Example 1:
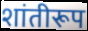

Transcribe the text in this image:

शांतीरूप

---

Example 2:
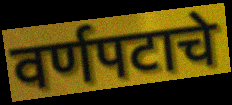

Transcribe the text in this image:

वर्णपटाचे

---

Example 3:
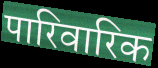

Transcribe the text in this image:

पारिवारिक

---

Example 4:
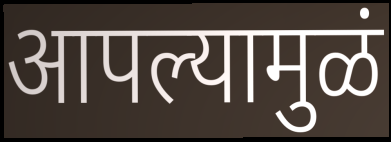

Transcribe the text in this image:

आपल्यामुळं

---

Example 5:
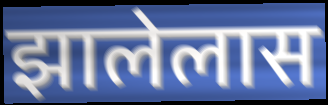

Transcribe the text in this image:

झालेलास